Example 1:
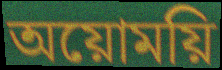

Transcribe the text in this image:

অয়োময়ি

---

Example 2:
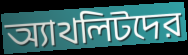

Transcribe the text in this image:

অ্যাথলিটদের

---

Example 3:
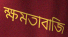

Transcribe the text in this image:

ক্ষমতাবাজি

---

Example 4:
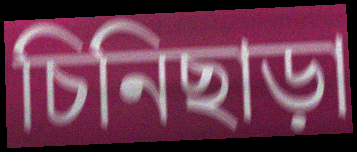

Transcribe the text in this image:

চিনিছাড়া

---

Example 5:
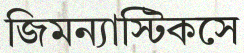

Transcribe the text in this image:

জিমন্যাস্টিকসে